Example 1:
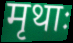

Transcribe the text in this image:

मृथाः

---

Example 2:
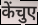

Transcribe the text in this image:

केंचुए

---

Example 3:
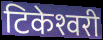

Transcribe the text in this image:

टिकेश्वरी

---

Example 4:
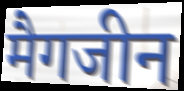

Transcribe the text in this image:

मैगजीन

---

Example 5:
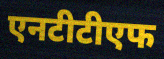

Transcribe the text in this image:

एनटीटीएफ